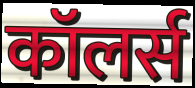
कॉलर्स